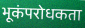
भूकंपरोधकता